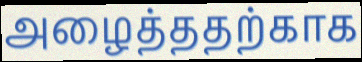
அழைத்ததற்காக